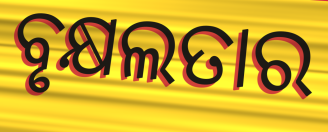
ବୃକ୍ଷଲତାର